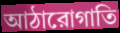
আঠারোগাতি